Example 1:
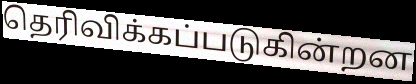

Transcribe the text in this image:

தெரிவிக்கப்படுகின்றன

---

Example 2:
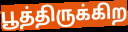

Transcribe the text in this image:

பூத்திருக்கிற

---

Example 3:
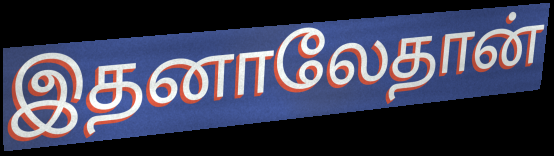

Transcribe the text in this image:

இதனாலேதான்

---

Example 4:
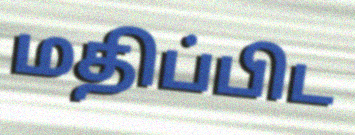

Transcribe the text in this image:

மதிப்பிட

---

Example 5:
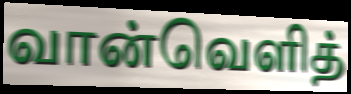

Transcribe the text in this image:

வான்வெளித்